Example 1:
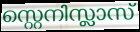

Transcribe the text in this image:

സ്റ്റെനിസ്ലാസ്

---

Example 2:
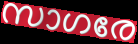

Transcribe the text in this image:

സാഗരേ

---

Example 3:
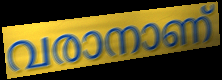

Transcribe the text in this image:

വരാനാണ്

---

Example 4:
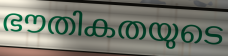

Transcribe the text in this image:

ഭൗതികതയുടെ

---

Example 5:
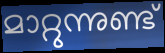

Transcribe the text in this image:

മാറ്റുന്നുണ്ട്